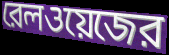
রেলওয়েজের